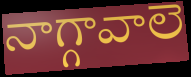
నాగ్గావాలె